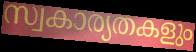
സ്വകാര്യതകളും